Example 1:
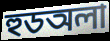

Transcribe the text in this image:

হুডঅলা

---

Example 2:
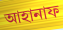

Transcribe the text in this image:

আহানাফ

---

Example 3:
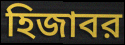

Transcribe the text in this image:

হিজাবর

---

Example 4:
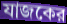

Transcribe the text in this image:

যাজকের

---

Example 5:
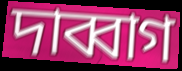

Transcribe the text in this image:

দাব্বাগ